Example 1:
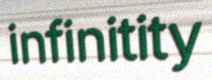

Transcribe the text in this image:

infinitity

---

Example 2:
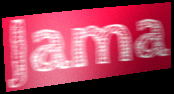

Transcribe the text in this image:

Jama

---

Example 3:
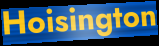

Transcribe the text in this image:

Hoisington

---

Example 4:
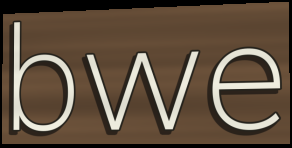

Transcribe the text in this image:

bwe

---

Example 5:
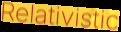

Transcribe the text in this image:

Relativistic